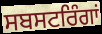
ਸਬਸਟਰਿੰਗਾਂ